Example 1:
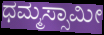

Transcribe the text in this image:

ಧಮ್ಮಸ್ಸಾಮೀ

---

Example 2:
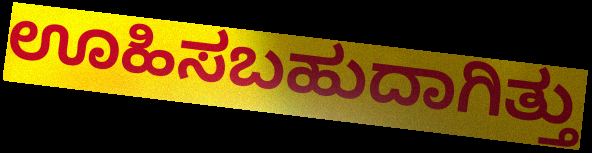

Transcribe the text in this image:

ಊಹಿಸಬಹುದಾಗಿತ್ತು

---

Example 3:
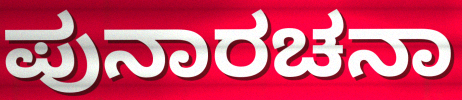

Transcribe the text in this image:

ಪುನಾರಚನಾ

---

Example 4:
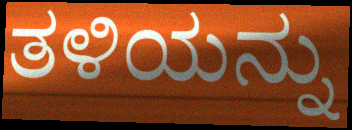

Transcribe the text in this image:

ತಳಿಯನ್ನು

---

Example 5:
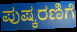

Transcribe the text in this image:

ಪುಷ್ಕರಣಿಗೆ